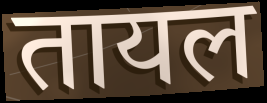
तायल